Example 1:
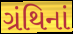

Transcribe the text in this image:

ગ્રંથિનાં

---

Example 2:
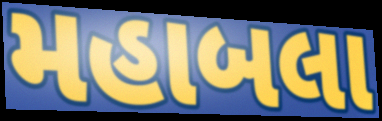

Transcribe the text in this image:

મહાબલા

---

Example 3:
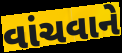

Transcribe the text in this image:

વાંચવાને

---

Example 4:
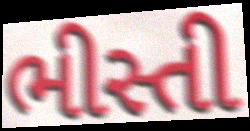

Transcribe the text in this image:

ભીસ્તી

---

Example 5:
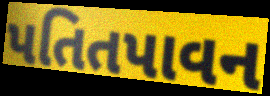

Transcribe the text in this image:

પતિતપાવન